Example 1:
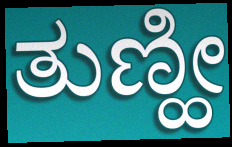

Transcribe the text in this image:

ತುಣ್ಹೀ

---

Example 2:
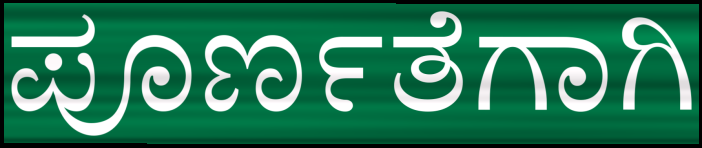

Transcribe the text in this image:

ಪೂರ್ಣತೆಗಾಗಿ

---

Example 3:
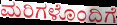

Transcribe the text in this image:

ಮರಿಗಳೊಂದಿಗೆ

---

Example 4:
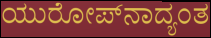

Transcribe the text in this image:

ಯುರೋಪ್‌ನಾದ್ಯಂತ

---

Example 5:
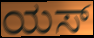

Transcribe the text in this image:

ಯಸ್